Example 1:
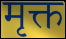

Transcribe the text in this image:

मृक्त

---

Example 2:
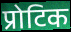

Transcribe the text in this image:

प्रोटिक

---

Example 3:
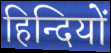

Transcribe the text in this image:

हिन्दियों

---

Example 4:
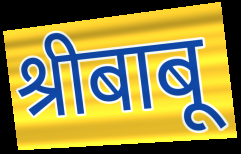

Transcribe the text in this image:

श्रीबाबू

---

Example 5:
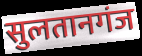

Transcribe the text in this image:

सुलतानगंज